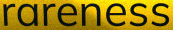
rareness